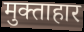
मुक्ताहार